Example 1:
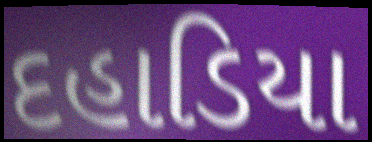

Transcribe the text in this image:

દહાડિયા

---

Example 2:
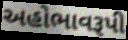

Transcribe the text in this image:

અહોભાવરૂપી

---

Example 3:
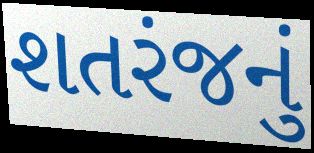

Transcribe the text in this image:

શતરંજનું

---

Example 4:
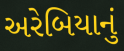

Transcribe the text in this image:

અરેબિયાનું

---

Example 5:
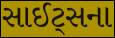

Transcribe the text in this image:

સાઈટ્સના